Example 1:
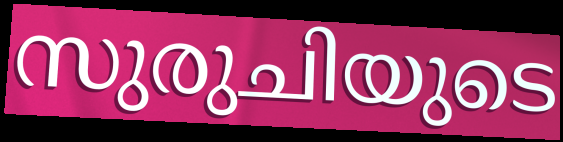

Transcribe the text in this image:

സുരുചിയുടെ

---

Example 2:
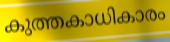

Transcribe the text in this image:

കുത്തകാധികാരം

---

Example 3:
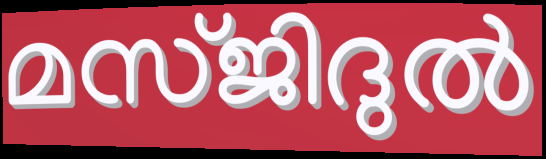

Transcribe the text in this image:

മസ്ജിദുൽ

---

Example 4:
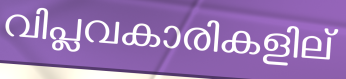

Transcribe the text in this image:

വിപ്ലവകാരികളില്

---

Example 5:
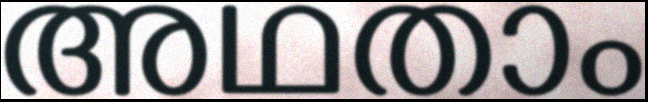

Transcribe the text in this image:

അഥതാം